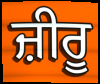
ਜ਼ੀਰੂ